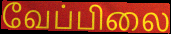
வேப்பிலை